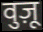
वुज़ू